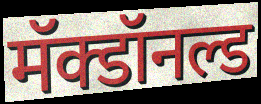
मॅक्डॉनल्ड